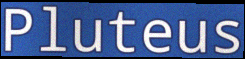
Pluteus